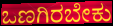
ಒಣಗಿರಬೇಕು